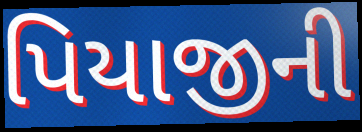
પિયાજીની